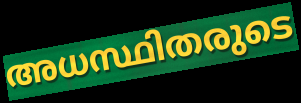
അധസ്ഥിതരുടെ